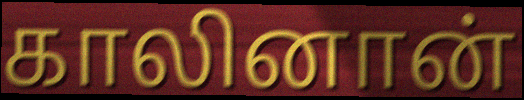
காலினான்